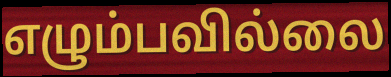
எழும்பவில்லை